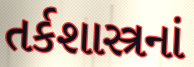
તર્કશાસ્ત્રનાં